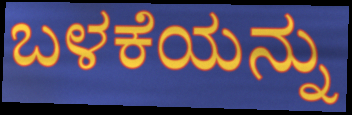
ಬಳಕೆಯನ್ನು